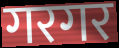
गरगर